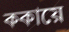
ককায়ে